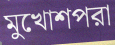
মুখোশপরা